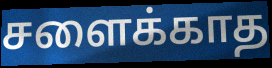
சளைக்காத